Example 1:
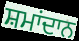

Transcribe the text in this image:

ਸ਼ਮਾਂਦਾਨ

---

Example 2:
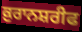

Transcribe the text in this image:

ਕ਼ੁਰਾਨਸ਼ਰੀਫ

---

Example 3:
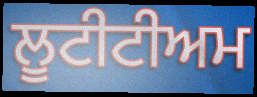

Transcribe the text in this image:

ਲੂਟੀਟੀਅਮ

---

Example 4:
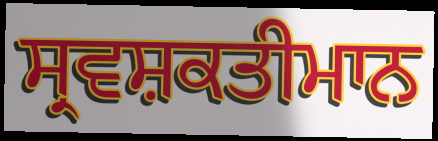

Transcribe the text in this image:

ਸ੍ਰਵਸ਼ਕਤੀਮਾਨ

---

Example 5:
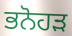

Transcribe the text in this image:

ਭਨੋਹੜ